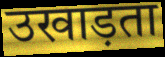
उखाड़ता